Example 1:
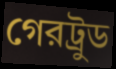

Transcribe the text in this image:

গেরট্রুড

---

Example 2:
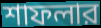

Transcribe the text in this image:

শাফলার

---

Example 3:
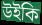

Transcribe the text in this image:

উইকি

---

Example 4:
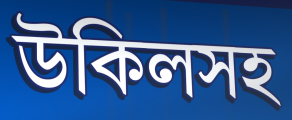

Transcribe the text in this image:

উকিলসহ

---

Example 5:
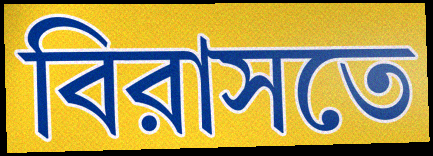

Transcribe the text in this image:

বিরাসতে